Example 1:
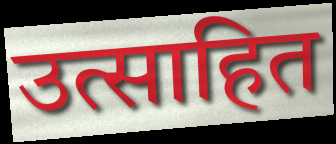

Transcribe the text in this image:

उत्साहित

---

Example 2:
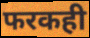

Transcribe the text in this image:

फरकही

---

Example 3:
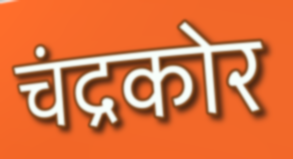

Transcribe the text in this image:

चंद्रकोर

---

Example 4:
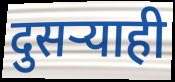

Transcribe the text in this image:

दुसऱ्याही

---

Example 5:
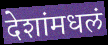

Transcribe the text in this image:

देशांमधलं